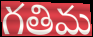
గతిమ